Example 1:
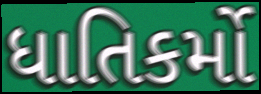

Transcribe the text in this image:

ધાતિકર્મો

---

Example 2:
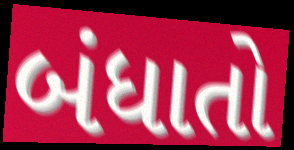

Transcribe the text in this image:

બંધાતો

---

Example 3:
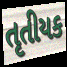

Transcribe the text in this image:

તૃતીયક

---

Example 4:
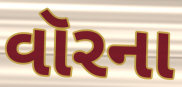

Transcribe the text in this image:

વૉરના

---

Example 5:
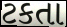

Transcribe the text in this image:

ટકતા